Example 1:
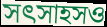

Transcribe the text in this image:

সৎসাহসও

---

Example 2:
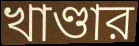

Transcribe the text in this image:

খাণ্ডার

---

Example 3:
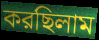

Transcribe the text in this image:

করছিলাম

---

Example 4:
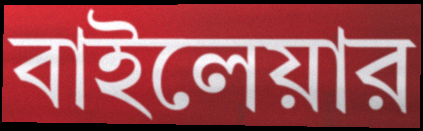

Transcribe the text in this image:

বাইলেয়ার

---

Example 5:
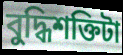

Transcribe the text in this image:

বুদ্ধিশক্তিটা